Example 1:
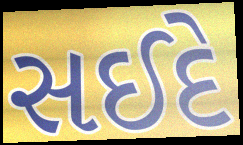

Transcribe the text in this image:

સઈદે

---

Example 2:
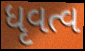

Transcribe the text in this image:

ધૃવત્વ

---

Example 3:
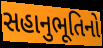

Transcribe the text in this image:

સહાનુભૂતિનો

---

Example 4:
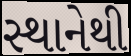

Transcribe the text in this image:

સ્થાનેથી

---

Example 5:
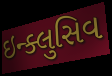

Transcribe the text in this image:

ઇન્ક્લુસિવ